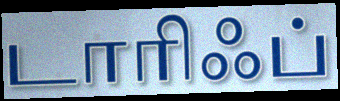
டாரிஃப்